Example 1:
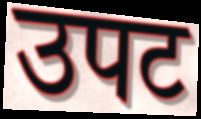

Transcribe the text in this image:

उपट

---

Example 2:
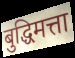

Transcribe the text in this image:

बुद्धिमत्ता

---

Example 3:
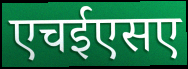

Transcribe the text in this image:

एचईएसए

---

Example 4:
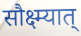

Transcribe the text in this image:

सौक्ष्म्यात्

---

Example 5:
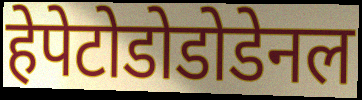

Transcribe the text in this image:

हेपेटोडोडोडेनल